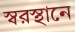
স্বরস্থানে